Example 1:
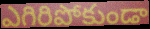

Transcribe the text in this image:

ఎగిరిపోకుండా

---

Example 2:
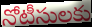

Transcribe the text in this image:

నోటీసులకు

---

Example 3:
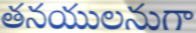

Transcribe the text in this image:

తనయులనుగా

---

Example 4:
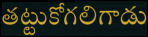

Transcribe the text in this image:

తట్టుకోగలిగాడు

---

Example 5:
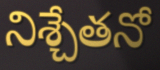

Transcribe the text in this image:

నిశ్చేతనో